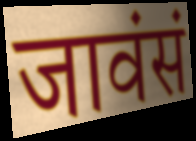
जावंसं